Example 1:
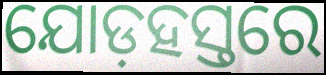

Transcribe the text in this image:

ଯୋଡ଼ହସ୍ତରେ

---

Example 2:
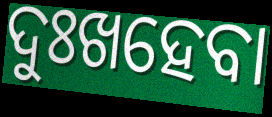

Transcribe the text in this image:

ଦୁଃଖହେବା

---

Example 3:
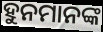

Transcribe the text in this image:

ହୁନମାନଙ୍କ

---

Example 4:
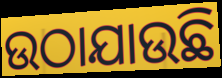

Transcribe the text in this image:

ଉଠାଯାଉଛି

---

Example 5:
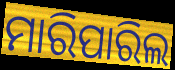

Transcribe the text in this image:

ମାରିପାରିଲ